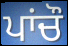
ਪਾਂਚੌ